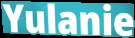
Yulanie